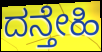
ದನ್ತೇಹಿ